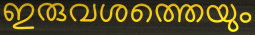
ഇരുവശത്തെയും